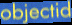
objectid